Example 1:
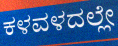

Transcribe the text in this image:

ಕಳವಳದಲ್ಲೇ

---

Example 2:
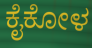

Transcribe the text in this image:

ಕೈಕೋಳ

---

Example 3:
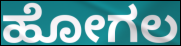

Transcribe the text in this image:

ಹೋಗಲ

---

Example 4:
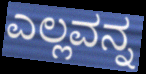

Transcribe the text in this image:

ಎಲ್ಲವನ್ನ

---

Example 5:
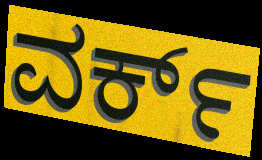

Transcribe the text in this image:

ವರ್ಕ್